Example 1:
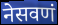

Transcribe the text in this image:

नेसवणं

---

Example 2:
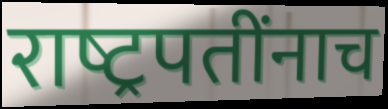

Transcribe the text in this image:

राष्ट्रपतींनाच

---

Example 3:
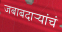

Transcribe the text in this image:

जबाबदार्‍यांचं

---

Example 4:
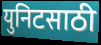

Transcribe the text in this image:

युनिटसाठी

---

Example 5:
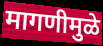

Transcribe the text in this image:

मागणीमुळे